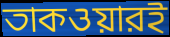
তাকওয়ারই